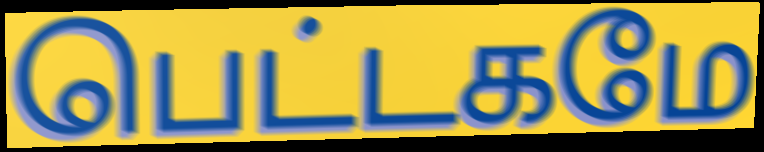
பெட்டகமே